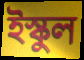
ইস্কুল